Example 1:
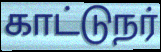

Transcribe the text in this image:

காட்டுநர்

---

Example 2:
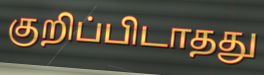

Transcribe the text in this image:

குறிப்பிடாதது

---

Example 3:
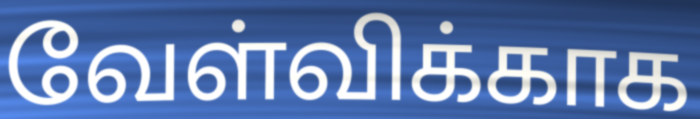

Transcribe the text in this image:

வேள்விக்காக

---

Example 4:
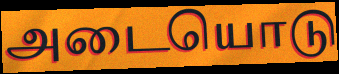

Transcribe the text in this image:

அடையொடு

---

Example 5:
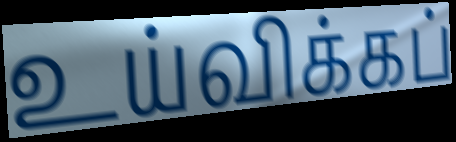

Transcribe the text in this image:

உய்விக்கப்